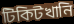
টিকিটখানি